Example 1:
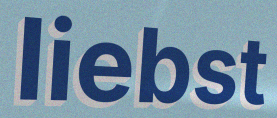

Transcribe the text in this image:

liebst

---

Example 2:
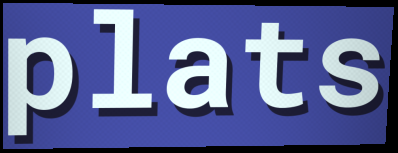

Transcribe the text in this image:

plats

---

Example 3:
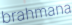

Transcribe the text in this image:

brahmana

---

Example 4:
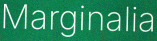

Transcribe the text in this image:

Marginalia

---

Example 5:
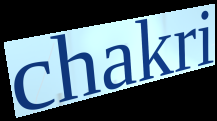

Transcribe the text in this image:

chakri